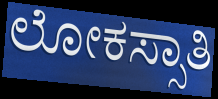
ಲೋಕಸ್ಸಾತಿ